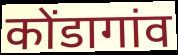
कोंडागांव